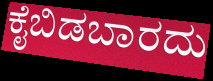
ಕೈಬಿಡಬಾರದು